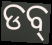
ଡବ୍